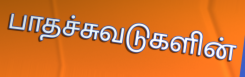
பாதச்சுவடுகளின்